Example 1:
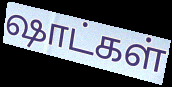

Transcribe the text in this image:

ஷாட்கள்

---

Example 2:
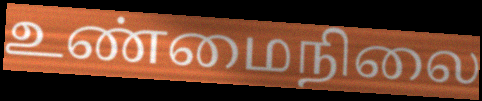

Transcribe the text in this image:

உண்மைநிலை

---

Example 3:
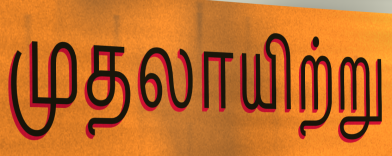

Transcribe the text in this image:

முதலாயிற்று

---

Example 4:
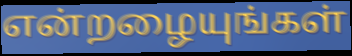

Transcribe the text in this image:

என்றழையுங்கள்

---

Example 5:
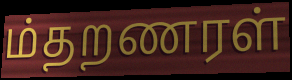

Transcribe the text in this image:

ம்தறணரள்